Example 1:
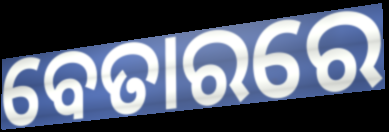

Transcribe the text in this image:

ବେତାରରେ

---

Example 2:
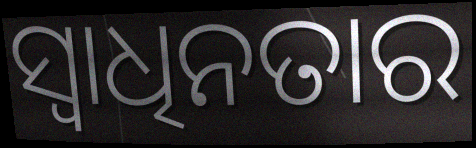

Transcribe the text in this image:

ସ୍ୱାଧିନତାର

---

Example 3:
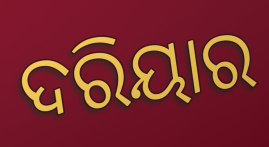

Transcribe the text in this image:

ଦରିୟାର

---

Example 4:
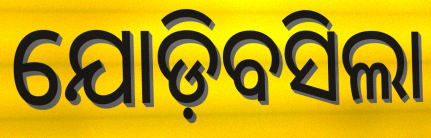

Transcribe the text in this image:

ଯୋଡ଼ିବସିଲା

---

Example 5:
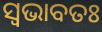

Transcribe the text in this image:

ସ୍ଵଭାବତଃ